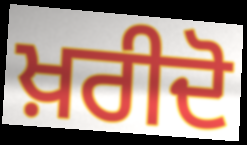
ਖ਼ਰੀਦੋ